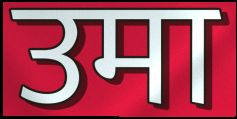
उमा